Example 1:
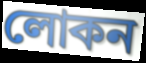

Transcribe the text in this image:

লোকন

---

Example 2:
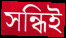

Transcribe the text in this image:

সন্ধিই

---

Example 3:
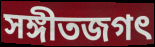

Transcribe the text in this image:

সঙ্গীতজগৎ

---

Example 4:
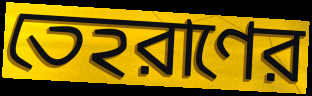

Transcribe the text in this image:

তেহরাণের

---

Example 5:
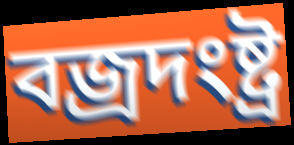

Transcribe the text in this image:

বজ্রদংষ্ট্র